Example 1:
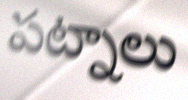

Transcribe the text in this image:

పట్నాలు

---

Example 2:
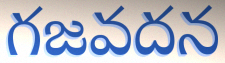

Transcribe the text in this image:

గజవదన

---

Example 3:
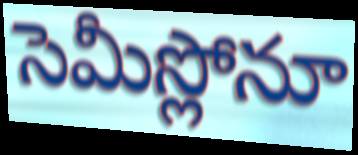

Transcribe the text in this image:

సెమీస్లోనూ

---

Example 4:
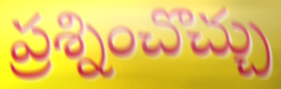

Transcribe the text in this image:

ప్రశ్నించొచ్చు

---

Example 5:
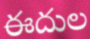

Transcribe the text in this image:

ఈదుల